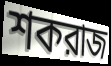
শকরাজ